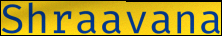
Shraavana